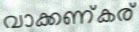
വാക്കണ്കര്